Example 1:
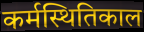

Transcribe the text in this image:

कर्मस्थितिकाल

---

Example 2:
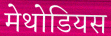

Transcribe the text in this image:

मेथोडियस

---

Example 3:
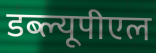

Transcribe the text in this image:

डब्ल्यूपीएल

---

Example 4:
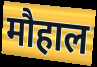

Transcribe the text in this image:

मौहाल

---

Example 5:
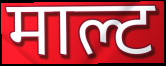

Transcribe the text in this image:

माल्ट